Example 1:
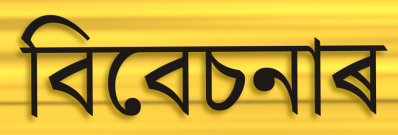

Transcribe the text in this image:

বিবেচনাৰ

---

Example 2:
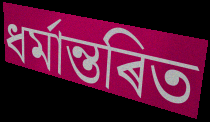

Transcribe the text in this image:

ধৰ্মান্তৰিত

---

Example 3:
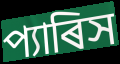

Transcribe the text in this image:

প্যাৰিস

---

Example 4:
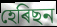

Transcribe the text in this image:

হেৰিছন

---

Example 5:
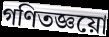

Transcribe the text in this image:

গণিতজ্ঞয়ো